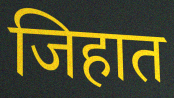
जिहात